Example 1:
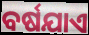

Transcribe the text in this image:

ବର୍ଷଯାଏ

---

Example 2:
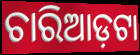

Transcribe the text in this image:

ଚାରିଆଡ଼ଟା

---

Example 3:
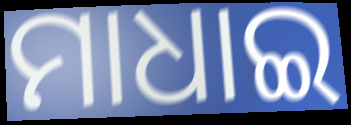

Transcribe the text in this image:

ମାଧାଇ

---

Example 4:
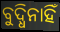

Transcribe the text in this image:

ବୁଦ୍ଧିନାହିଁ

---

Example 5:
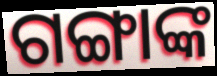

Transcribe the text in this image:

ଗଙ୍ଗାଙ୍କ